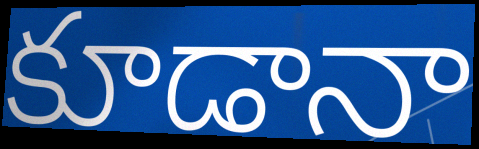
కూడానా